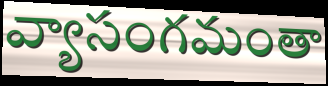
వ్యాసంగమంతా